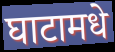
घाटामधे